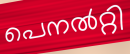
പെനൽറ്റി